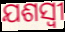
ଯଶସ୍ଵୀ